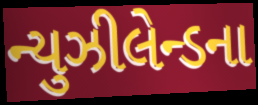
ન્યુઝીલેન્ડના